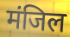
मंजिल